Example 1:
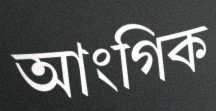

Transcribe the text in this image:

আংগিক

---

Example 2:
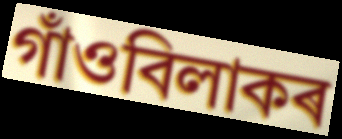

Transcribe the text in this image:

গাঁওবিলাকৰ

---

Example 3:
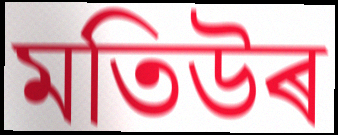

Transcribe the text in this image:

মতিউৰ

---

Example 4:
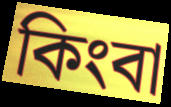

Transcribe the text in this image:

কিংবা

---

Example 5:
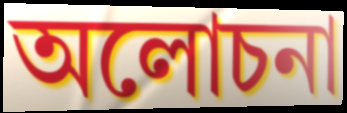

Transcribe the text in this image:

অলোচনা